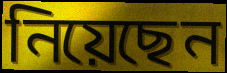
নিয়েছেন